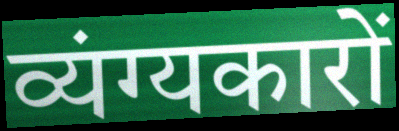
व्‍यंग्‍यकारों